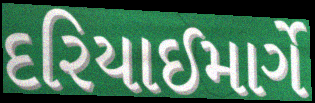
દરિયાઈમાર્ગે